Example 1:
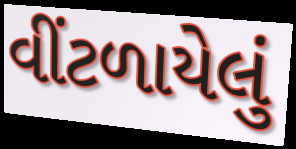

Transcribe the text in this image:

વીંટળાયેલું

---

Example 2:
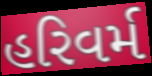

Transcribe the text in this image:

હરિવર્મ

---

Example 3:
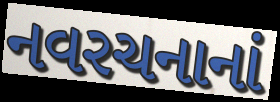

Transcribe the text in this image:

નવરચનાનાં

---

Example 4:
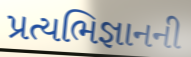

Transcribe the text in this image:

પ્રત્યભિજ્ઞાનની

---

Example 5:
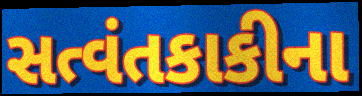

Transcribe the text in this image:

સત્વંતકાકીના